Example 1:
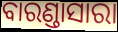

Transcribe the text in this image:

ବାରଣ୍ଡାସାରା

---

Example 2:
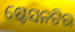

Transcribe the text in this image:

ଷ୍ଟେସନଟିର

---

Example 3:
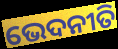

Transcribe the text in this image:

ଭେଦନୀତି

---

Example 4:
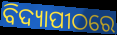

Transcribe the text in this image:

ବିଦ୍ୟାପୀଠରେ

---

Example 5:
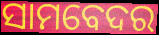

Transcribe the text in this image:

ସାମବେଦର